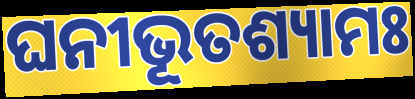
ଘନୀଭୂତଶ୍ୟାମଃ